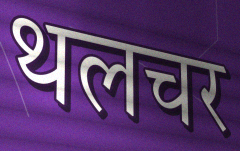
थलचर